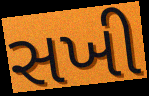
સખી